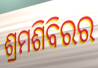
ଶ୍ରମଶିବିରର